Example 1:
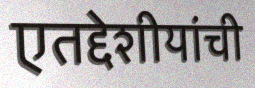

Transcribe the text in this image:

एतद्देशीयांची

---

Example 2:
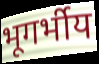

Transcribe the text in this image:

भूगर्भीय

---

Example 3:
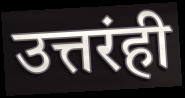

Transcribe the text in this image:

उत्तरंही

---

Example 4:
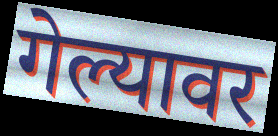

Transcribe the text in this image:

गेल्यावर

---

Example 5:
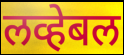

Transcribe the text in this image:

लव्हेबल